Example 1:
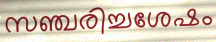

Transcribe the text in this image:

സഞ്ചരിച്ചശേഷം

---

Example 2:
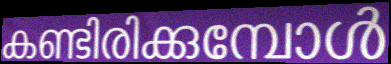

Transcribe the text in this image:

കണ്ടിരിക്കുമ്പോൾ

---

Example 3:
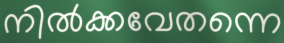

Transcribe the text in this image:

നിൽക്കവേതന്നെ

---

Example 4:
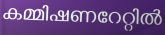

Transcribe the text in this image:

കമ്മിഷണറേറ്റിൽ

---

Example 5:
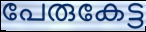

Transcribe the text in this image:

പേരുകേട്ട